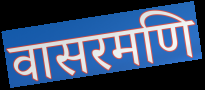
वासरमणि